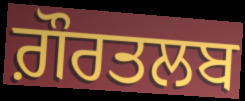
ਗ਼ੌਰਤਲਬ